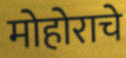
मोहोराचे